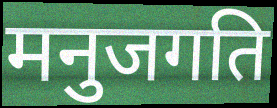
मनुजगति